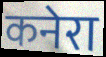
कनेरा